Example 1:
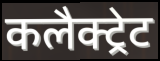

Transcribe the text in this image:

कलैक्ट्रेट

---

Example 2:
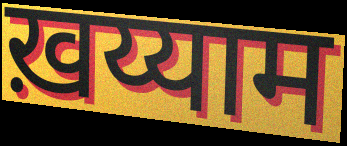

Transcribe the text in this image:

ख़य्याम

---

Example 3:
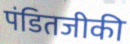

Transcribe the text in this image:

पंडितजीकी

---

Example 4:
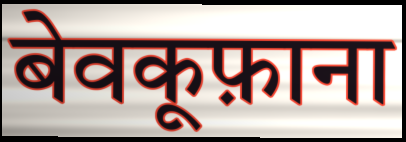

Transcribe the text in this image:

बेवकूफ़ाना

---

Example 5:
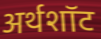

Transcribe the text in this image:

अर्थशॉट